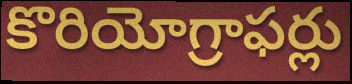
కొరియోగ్రాఫర్లు